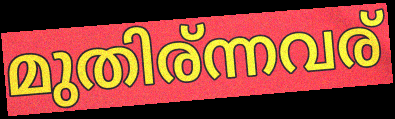
മുതിര്ന്നവര്